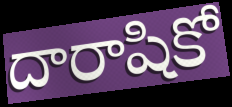
దారాషికో